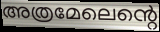
അത്രമേലെന്റെ